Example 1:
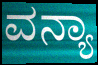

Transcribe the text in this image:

ವನ್ಯಾ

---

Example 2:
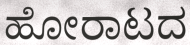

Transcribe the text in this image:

ಹೋರಾಟದ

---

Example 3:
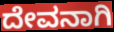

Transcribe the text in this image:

ದೇವನಾಗಿ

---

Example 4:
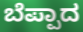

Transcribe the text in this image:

ಬೆಪ್ಪಾದ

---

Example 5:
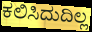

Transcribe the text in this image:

ಕಲಿಸಿದುದಿಲ್ಲ